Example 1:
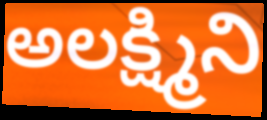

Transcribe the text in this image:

అలక్ష్మిని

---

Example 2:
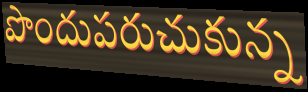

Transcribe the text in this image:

పొందుపరుచుకున్న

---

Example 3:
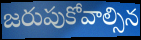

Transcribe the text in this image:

జరుపుకోవాల్సిన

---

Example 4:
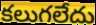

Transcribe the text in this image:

కలుగలేదు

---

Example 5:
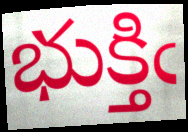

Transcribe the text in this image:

భుక్తిఁ